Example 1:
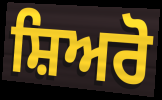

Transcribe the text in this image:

ਸ਼ਿਅਰੋ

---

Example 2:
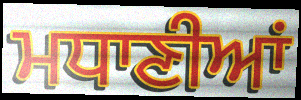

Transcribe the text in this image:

ਮਧਾਣੀਆਂ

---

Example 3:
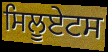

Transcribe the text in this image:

ਸਿਲੂਏਟਸ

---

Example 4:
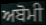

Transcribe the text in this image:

ਅਬੋਮੀ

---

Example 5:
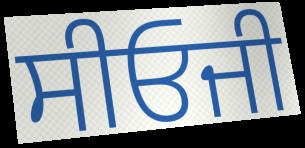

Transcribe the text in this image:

ਸੀਓਜੀ